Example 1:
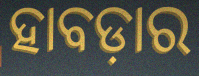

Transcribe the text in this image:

ହାବଡ଼ାର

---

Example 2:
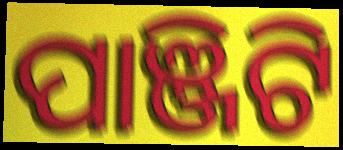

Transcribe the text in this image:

ପାଞ୍ଜିଟି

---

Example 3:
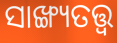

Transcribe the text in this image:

ସାଙ୍ଖ୍ୟତତ୍ତ୍ଵ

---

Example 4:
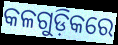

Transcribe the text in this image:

କଳଗୁଡ଼ିକରେ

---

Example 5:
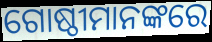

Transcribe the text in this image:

ଗୋଷ୍ଠୀମାନଙ୍କରେ